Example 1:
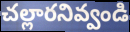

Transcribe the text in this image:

చల్లారనివ్వండి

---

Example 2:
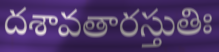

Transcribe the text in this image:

దశావతారస్తుతిః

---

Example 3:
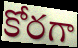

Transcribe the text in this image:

కోరగా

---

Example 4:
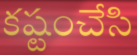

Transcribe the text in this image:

కష్టంచేసి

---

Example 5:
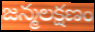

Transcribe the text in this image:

జన్మలక్షణం